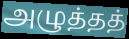
அழுத்தத்